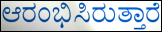
ಆರಂಭಿಸಿರುತ್ತಾರೆ